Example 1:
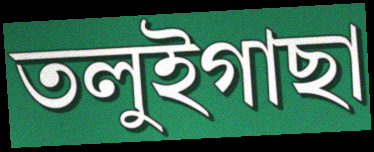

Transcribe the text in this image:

তলুইগাছা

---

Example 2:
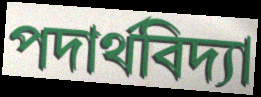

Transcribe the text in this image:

পদার্থবিদ্যা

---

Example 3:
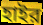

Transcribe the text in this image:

হাইর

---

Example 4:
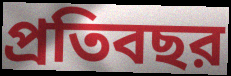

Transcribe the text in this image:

প্রতিবছর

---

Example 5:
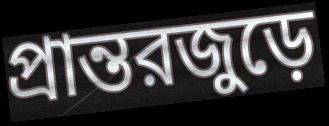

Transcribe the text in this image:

প্রান্তরজুড়ে